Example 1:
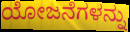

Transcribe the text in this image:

ಯೋಜನೆಗಳನ್ನು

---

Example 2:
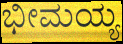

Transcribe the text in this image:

ಭೀಮಯ್ಯ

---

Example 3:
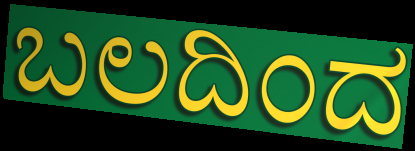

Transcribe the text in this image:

ಬಲದಿಂದ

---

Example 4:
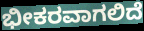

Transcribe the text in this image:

ಭೀಕರವಾಗಲಿದೆ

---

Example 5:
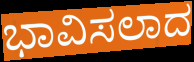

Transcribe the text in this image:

ಭಾವಿಸಲಾದ